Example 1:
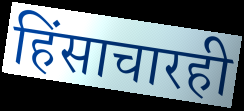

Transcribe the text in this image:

हिंसाचारही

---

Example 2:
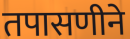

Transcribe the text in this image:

तपासणीने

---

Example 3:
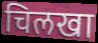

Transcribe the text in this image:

चिलखा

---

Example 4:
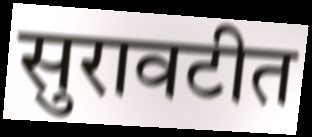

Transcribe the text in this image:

सुरावटीत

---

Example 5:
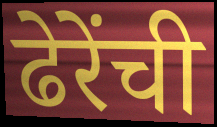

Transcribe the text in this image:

ढेरेंची